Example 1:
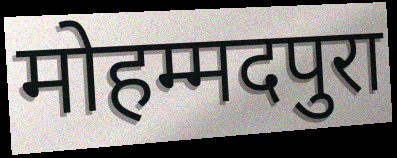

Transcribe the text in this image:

मोहम्मदपुरा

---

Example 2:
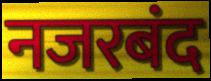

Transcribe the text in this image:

नजरबंद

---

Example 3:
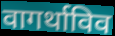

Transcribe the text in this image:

वागर्थाविव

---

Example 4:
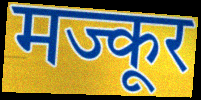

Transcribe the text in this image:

मज्कूर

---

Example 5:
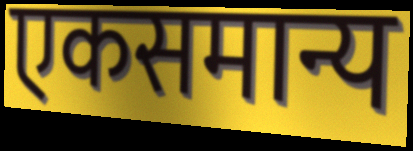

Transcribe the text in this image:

एकसमान्य